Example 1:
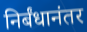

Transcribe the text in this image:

निर्बंधानंतर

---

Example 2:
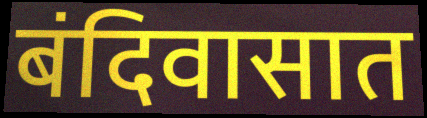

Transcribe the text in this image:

बंदिवासात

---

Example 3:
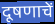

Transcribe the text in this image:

दूषणाचें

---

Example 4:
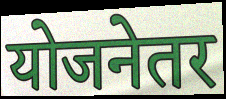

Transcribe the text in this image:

योजनेतर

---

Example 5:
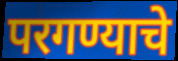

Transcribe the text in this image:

परगण्याचे